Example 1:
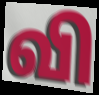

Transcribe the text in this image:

வி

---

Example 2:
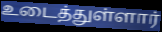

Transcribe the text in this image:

உடைத்துள்ளார்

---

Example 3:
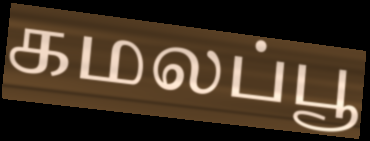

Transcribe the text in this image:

கமலப்பூ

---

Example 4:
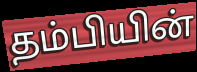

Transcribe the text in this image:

தம்பியின்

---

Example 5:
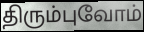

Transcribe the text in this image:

திரும்புவோம்